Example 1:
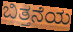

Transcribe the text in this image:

ಬಿತ್ತನೆಯ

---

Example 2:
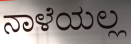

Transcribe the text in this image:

ನಾಳೆಯಲ್ಲ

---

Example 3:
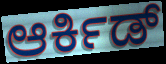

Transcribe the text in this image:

ಆರ್ಕಿಡ್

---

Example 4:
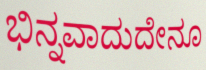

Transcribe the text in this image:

ಭಿನ್ನವಾದುದೇನೂ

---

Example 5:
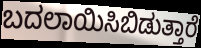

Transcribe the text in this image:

ಬದಲಾಯಿಸಿಬಿಡುತ್ತಾರೆ